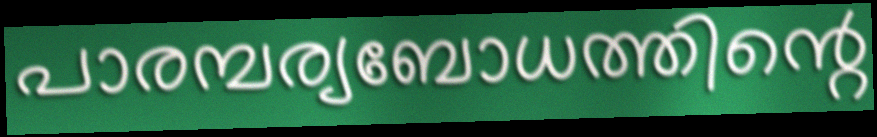
പാരമ്പര്യബോധത്തിന്റെ